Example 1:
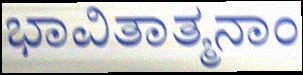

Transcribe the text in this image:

ಭಾವಿತಾತ್ಮನಾಂ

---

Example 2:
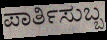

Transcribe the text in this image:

ಪಾರ್ತಿಸುಬ್ಬ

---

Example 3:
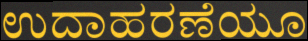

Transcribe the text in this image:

ಉದಾಹರಣೆಯೂ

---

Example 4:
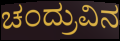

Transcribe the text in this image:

ಚಂದ್ರುವಿನ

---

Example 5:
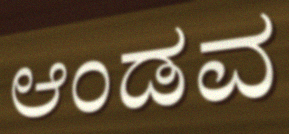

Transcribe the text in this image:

ಆಂಡವ